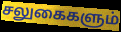
சலுகைகளும்